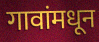
गावांमधून